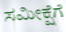
ಸಮೀಕ್ಷೆಗೆ